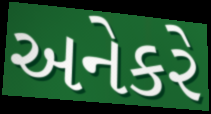
અનેકરે